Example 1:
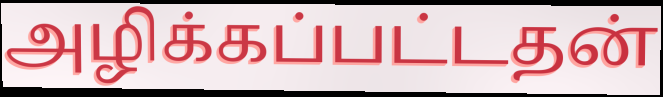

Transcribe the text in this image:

அழிக்கப்பட்டதன்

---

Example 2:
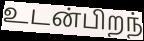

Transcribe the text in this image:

உடன்பிறந்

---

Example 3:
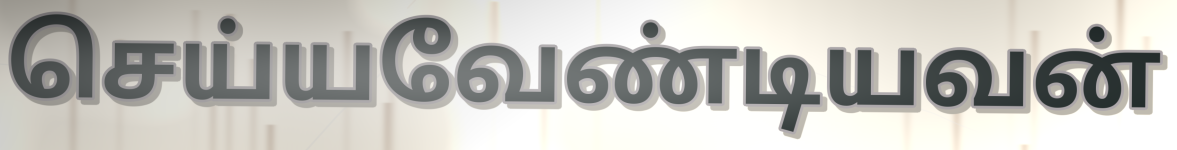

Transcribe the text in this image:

செய்யவேண்டியவன்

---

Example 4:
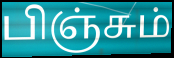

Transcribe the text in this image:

பிஞ்சும்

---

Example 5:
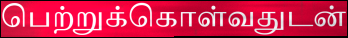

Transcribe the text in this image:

பெற்றுக்கொள்வதுடன்